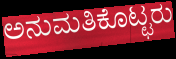
ಅನುಮತಿಕೊಟ್ಟರು